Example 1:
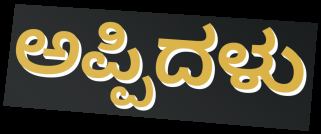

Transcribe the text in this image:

ಅಪ್ಪಿದಳು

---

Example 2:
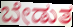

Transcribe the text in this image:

ಬೇಡುತ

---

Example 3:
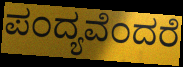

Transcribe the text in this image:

ಪಂದ್ಯವೆಂದರೆ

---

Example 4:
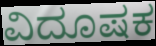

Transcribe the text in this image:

ವಿದೂಷಕ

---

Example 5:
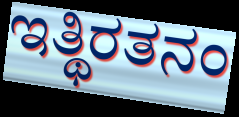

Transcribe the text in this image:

ಇತ್ಥಿರತನಂ